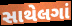
સાથેલગાં